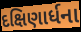
દક્ષિણાર્ધના